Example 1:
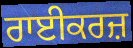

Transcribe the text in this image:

ਰਾਈਕਰਜ਼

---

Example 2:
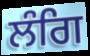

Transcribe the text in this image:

ਲੰਗਿ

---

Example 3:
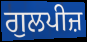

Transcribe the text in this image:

ਗੁਲਪੀਜ਼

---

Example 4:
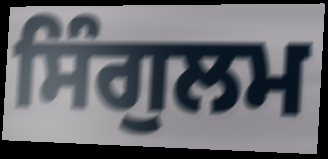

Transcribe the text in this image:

ਸਿੰਗੁਲਮ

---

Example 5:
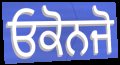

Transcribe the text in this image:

ਓਕੋਨਜੋ